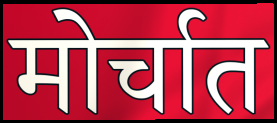
मोर्चात